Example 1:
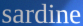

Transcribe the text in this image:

sardine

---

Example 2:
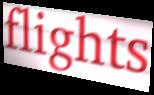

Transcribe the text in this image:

flights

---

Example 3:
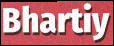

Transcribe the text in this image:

Bhartiy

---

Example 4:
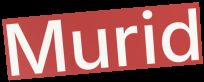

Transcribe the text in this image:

Murid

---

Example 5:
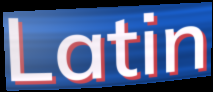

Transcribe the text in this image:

Latin